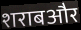
शराबऔर